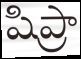
షిప్రా